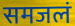
समजलं